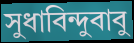
সুধাবিন্দুবাবু